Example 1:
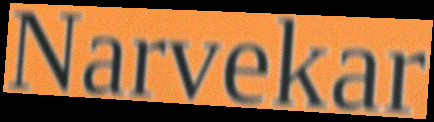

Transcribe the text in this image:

Narvekar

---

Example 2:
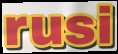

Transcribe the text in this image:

rusi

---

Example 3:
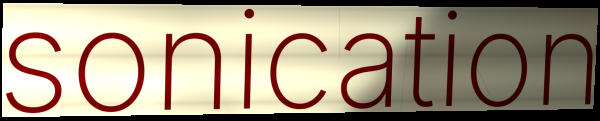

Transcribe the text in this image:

sonication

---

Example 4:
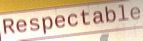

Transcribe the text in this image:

Respectable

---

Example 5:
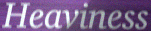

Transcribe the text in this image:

Heaviness